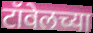
टॉवेलच्या